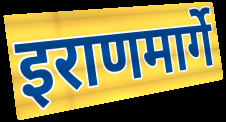
इराणमार्गे